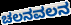
ಚಲನವಲನ